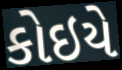
કોઇયે